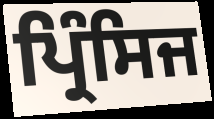
ਪ੍ਰਿੰਸਿਜ